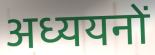
अध्ययनों